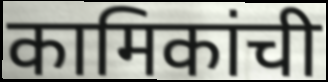
कामिकांची